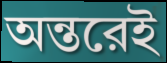
অন্তরেই